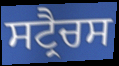
ਸਟ੍ਰੈਚਸ